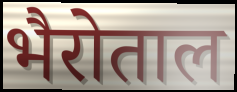
भैरोताल